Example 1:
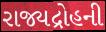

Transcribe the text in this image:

રાજ્યદ્રોહની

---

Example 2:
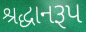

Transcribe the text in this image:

શ્રદ્ધાનરૂપ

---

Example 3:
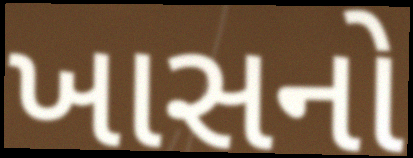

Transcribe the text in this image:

ખાસનો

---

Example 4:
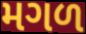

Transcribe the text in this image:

મગળ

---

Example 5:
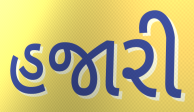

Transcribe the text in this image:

હજારી